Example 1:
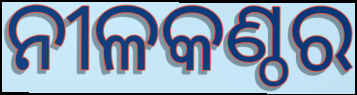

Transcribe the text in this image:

ନୀଳକଣ୍ଠର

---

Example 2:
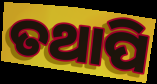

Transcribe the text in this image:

ତଥାପି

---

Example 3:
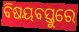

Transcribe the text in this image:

ବିଷୟବସ୍ତୁରେ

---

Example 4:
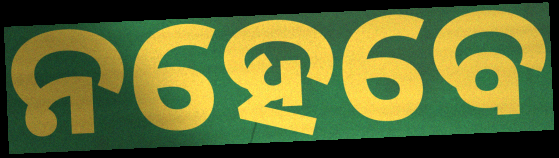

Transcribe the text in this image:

ନହେବେ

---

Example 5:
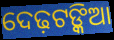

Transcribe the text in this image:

ଦେଢ଼ଟଙ୍କିଆ